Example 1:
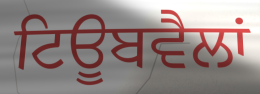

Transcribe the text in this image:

ਟਿਊਬਵੈਲਾਂ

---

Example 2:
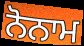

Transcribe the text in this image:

ਨੋਨਾਮ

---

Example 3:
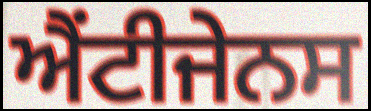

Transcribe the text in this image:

ਐਂਟੀਜੇਨਸ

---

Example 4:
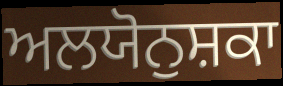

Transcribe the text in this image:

ਅਲਯੋਨੁਸ਼ਕਾ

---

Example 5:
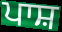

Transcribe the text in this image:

ਪਾਸ਼